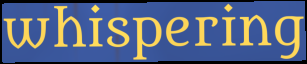
whispering